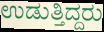
ಉಡುತ್ತಿದ್ದರು